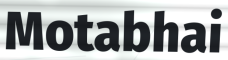
Motabhai